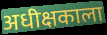
अधीक्षकाला